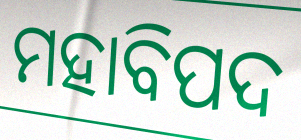
ମହାବିପଦ